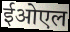
ईओएल